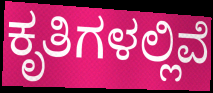
ಕೃತಿಗಳಲ್ಲಿವೆ